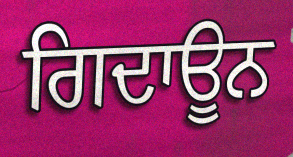
ਗਿਦਾਊਨ